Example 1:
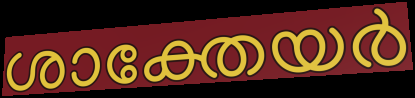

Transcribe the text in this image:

ശാക്തേയർ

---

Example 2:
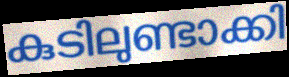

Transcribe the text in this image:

കുടിലുണ്ടാക്കി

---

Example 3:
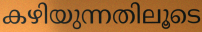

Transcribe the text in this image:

കഴിയുന്നതിലൂടെ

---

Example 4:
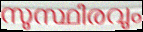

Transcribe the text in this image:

സുസ്ഥിരവും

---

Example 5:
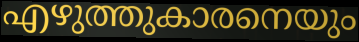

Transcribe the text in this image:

എഴുത്തുകാരനെയും